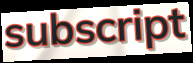
subscript